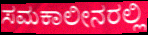
ಸಮಕಾಲೀನರಲ್ಲಿ